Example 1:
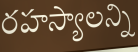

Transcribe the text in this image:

రహస్యాలన్ని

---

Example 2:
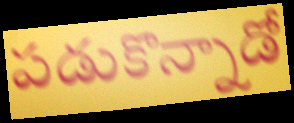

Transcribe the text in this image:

పడుకొన్నాడో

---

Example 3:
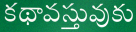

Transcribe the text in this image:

కథావస్తువుకు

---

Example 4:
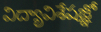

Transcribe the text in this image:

విద్యావిశేషజ్ఞో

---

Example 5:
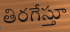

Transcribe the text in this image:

తిరగేస్తూ